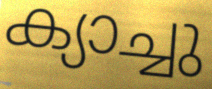
ക്യാച്ചു